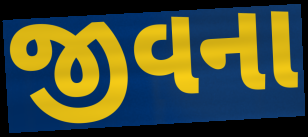
જીવના